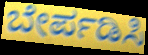
ಬೇರ್ಪಡಿಸಿ